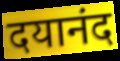
दयानंद